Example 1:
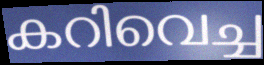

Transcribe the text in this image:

കറിവെച്ച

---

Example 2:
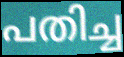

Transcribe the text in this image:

പതിച്ച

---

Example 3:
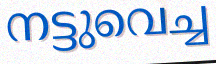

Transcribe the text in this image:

നട്ടുവെച്ച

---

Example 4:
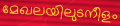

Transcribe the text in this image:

മേഖലയിലുടനീളം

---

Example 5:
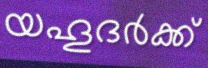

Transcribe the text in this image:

യഹൂദർക്ക്